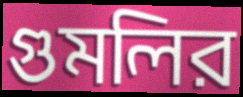
গুমলির